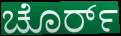
ಚೊರ್ರ್